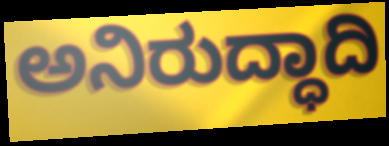
ಅನಿರುದ್ಧಾದಿ